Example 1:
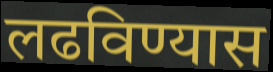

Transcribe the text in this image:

लढविण्यास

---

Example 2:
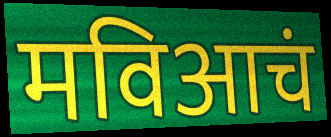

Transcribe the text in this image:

मविआचं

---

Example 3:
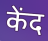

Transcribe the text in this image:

केंद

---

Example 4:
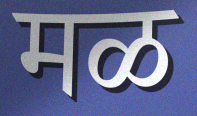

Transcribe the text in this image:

मळ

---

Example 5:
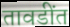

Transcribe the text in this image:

तावडींत